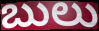
బులు